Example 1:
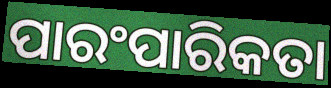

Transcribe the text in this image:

ପାରଂପାରିକତା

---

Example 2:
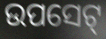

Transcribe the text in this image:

ଉପସେଟ୍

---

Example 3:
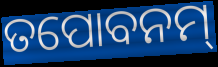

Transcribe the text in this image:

ତପୋବନମ୍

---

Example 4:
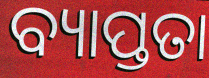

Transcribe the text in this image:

ବ୍ୟାପ୍ତତା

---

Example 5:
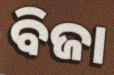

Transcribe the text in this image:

ବିଜା